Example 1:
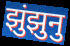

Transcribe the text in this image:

झुंझुनु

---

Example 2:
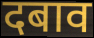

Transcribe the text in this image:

दबाव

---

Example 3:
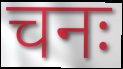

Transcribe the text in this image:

चनः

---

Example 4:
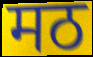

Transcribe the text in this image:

मठ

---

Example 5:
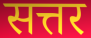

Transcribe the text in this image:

सत्तर